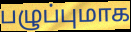
பழுப்புமாக